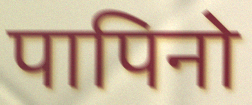
पापिनो